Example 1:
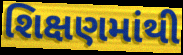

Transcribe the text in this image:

શિક્ષણમાંથી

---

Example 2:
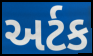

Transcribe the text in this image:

અર્ટક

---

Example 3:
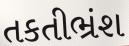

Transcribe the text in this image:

તકતીભ્રંશ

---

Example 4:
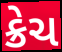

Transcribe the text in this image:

ક્રેચ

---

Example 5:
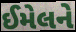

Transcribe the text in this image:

ઈમેલને